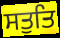
ਸਤੁਤਿ